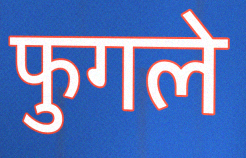
फुगले